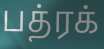
பத்ரக்